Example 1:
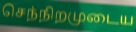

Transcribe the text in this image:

செந்நிறமுடைய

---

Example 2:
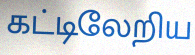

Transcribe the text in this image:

கட்டிலேறிய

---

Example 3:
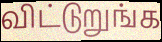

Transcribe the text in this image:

விட்டுறுங்க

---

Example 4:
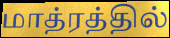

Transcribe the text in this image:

மாத்ரத்தில்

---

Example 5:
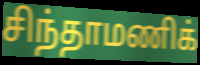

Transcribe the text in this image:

சிந்தாமணிக்